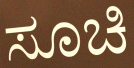
ಸೂಚಿ